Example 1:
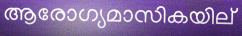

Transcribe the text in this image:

ആരോഗ്യമാസികയില്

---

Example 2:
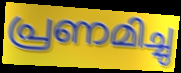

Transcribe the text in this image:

പ്രണമിച്ചു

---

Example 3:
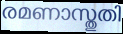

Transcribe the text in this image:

രമണാസ്തുതി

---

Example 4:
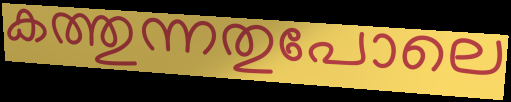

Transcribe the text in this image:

കത്തുന്നതുപോലെ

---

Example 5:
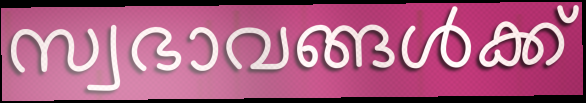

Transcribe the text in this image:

സ്വഭാവങ്ങൾക്ക്